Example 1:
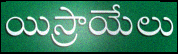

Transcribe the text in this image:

యిస్రాయేలు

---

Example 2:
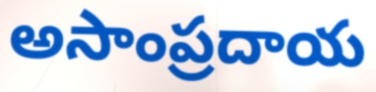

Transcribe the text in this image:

అసాంప్రదాయ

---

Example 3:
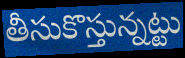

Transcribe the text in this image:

తీసుకొస్తున్నట్టు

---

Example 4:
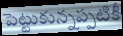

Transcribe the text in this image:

పెట్టుకున్నప్పటికీ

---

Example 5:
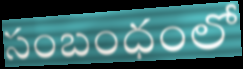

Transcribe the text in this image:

సంబంధంలో